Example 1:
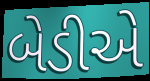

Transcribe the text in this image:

બેડીએ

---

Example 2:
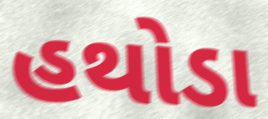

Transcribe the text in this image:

હથોડા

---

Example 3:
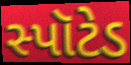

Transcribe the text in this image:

સ્પૉટેડ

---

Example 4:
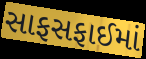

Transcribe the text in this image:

સાફસફાઈમાં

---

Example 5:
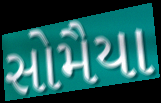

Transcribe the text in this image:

સોમૈયા